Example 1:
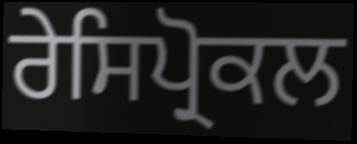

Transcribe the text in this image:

ਰੇਸਿਪ੍ਰੋਕਲ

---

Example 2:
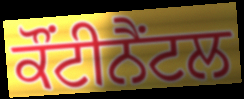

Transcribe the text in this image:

ਕੌਂਟੀਨੈਂਟਲ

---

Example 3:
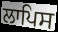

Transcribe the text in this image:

ਲਾਪਿਸ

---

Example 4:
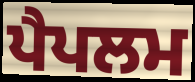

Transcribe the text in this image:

ਪੈਪਲਮ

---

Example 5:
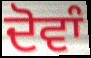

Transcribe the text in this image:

ਦੋਵਾੰ